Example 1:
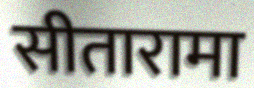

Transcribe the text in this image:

सीतारामा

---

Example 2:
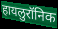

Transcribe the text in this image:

हायलुरॉनिक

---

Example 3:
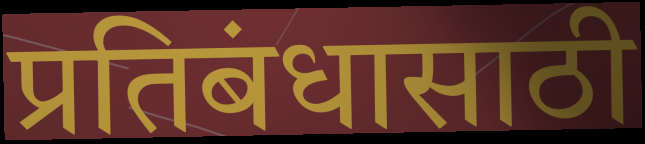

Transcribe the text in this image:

प्रतिबंधासाठी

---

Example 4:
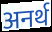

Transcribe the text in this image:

अनर्थ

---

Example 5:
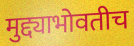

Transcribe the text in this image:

मुद्द्याभोवतीच